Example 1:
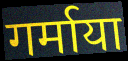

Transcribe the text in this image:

गर्माया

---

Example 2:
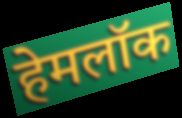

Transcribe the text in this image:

हेमलॉक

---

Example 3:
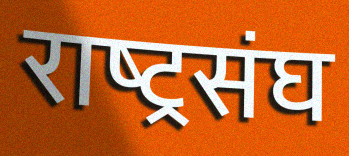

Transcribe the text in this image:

राष्ट्रसंघ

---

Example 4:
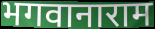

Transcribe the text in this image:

भगवानाराम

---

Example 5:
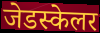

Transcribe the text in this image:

जेडस्केलर